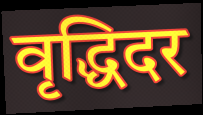
वृद्धिदर